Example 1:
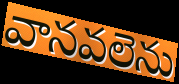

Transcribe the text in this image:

వానవలెను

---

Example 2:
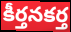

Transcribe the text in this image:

కీర్తనకర్త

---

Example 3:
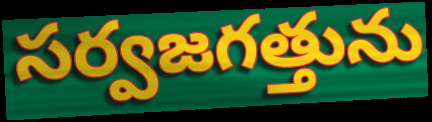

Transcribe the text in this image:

సర్వజగత్తును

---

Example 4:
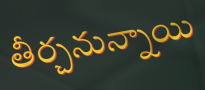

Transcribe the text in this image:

తీర్చనున్నాయి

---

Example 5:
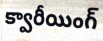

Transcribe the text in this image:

క్వారీయింగ్